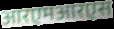
आरएमआरएस